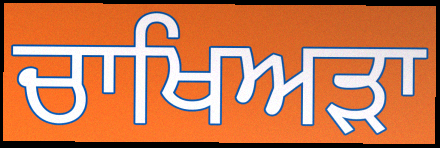
ਚਾਖਿਅੜਾ